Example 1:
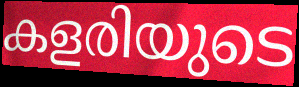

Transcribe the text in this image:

കളരിയുടെ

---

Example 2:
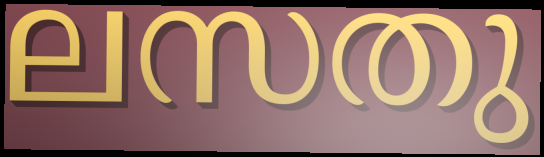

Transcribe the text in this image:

ലസതു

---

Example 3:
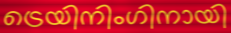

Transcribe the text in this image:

ട്രെയിനിംഗിനായി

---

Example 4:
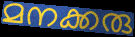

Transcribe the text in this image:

മനക്കരു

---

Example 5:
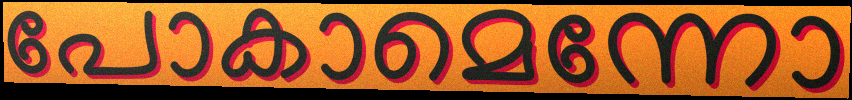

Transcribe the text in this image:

പോകാമെന്നോ